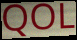
QOL